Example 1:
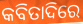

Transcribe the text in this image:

କବିତାଦିରେ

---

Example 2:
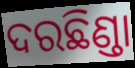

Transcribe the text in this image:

ଦରଛିଣ୍ଡା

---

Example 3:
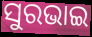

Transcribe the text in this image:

ସୁରଭାଇ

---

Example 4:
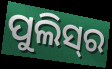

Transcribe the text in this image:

ପୁଲିସ୍‍ର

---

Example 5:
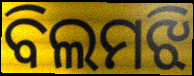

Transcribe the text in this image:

ବିଲମଝି